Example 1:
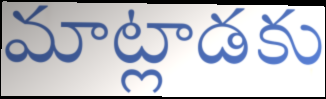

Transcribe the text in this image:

మాట్లాడకు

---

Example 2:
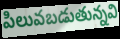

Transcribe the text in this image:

పిలువబడుతున్నవి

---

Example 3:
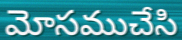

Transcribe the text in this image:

మోసముచేసి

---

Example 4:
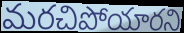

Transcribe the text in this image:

మరచిపోయారని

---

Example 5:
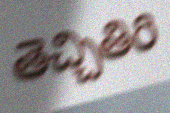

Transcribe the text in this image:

తెచ్చితిరి